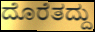
ದೊರೆತದ್ದು